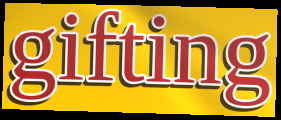
gifting